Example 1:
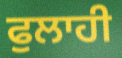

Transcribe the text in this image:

ਫੁਲਾਹੀ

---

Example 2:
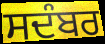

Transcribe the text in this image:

ਸਦੰਬਰ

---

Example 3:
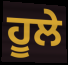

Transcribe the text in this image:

ਹੂਲੇ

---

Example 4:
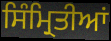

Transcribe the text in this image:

ਸਿੰਮ੍ਰਿਤੀਆਂ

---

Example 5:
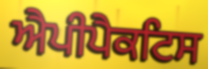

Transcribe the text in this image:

ਐਪੀਪੈਕਟਿਸ